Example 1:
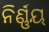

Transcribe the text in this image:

ନିର୍ଣ୍ଣୟ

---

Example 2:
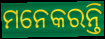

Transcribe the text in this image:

ମନେକରନ୍ତି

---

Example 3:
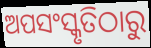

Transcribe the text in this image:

ଅପସଂସ୍କୃତିଠାରୁ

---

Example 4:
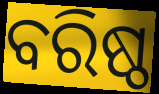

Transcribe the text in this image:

ବରିଷ୍ଠ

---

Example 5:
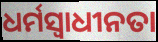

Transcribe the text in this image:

ଧର୍ମସ୍ୱାଧୀନତା